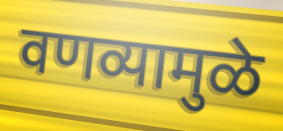
वणव्यामुळे